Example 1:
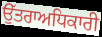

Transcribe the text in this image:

ਉੱਤਰਾਅਧਿਕਾਰੀ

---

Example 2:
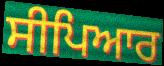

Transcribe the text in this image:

ਸੀਪਿਆਰ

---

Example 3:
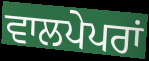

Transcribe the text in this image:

ਵਾਲਪੇਪਰਾਂ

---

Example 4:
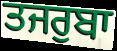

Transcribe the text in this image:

ਤਜਰੁਬਾ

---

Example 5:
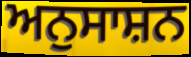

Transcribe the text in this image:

ਅਨੁਸਾਸ਼ਨ